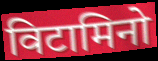
विटामिनो